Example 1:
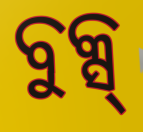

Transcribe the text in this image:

ବୁକ୍ସ୍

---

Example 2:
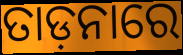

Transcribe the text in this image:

ତାଡ଼ନାରେ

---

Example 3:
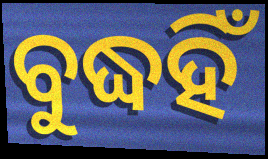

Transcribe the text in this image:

ବୁଦ୍ଧହିଁ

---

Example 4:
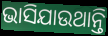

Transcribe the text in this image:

ଭାସିଯାଉଥାନ୍ତି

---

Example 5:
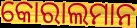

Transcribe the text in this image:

କୋରାଲମାନ